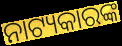
ନାଟ୍ୟକାରଙ୍କ